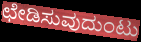
ಛೇಡಿಸುವುದುಂಟು